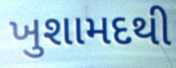
ખુશામદથી